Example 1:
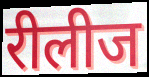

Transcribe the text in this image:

रीलीज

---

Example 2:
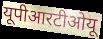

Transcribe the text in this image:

यूपीआरटीओयू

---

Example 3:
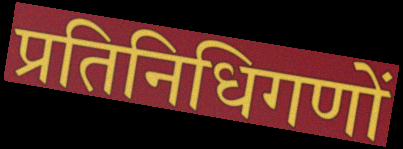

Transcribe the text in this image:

प्रतिनिधिगणों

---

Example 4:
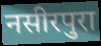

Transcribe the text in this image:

नसीरपुरा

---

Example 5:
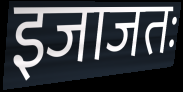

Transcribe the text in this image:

इजाजतः